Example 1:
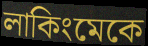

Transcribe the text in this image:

লাকিংমেকে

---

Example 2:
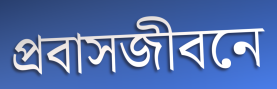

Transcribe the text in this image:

প্রবাসজীবনে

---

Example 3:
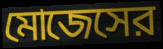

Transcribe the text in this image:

মোজেসের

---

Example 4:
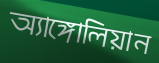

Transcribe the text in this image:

অ্যাঙ্গোলিয়ান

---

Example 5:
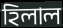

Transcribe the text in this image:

হিলাল